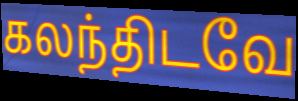
கலந்திடவே